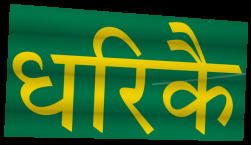
धरिकै